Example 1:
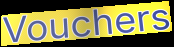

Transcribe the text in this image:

Vouchers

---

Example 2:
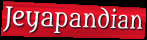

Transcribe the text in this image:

Jeyapandian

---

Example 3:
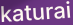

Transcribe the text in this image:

katurai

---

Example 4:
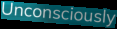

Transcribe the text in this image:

Unconsciously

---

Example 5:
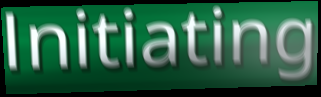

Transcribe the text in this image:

Initiating